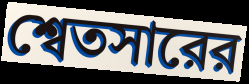
শ্বেতসারের